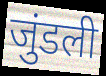
जुंडली